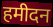
हमीदन